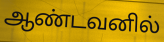
ஆண்டவனில்